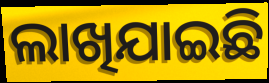
ଲାଖିଯାଇଛି